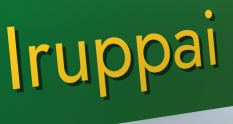
Iruppai